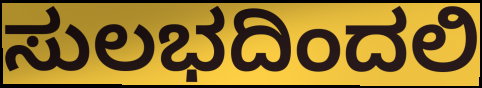
ಸುಲಭದಿಂದಲಿ